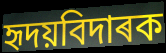
হৃদয়বিদাৰক